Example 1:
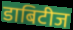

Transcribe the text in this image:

डाबिटीज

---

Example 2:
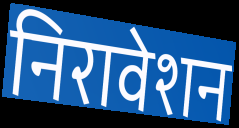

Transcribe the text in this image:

निरावेशन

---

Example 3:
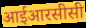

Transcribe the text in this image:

आईआरसीसी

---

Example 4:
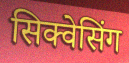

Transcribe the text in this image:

सिक्वेसिंग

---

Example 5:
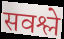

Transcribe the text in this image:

सवश्ले